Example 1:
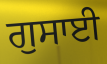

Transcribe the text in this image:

ਗੁਸਾਈ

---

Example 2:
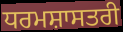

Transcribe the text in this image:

ਧਰਮਸ਼ਾਸਤਰੀ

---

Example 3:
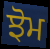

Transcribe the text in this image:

ਝੋਮ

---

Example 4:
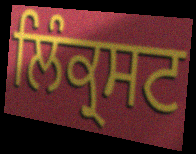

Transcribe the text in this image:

ਲਿੰਕ੍ਰਸਟ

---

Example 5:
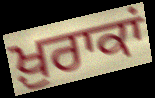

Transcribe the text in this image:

ਖ਼ੁਰਾਕਾਂ